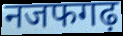
नजफगढ़